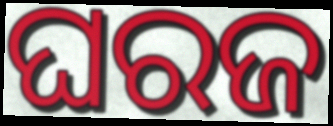
ଘରଜ